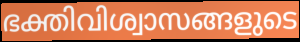
ഭക്തിവിശ്വാസങ്ങളുടെ